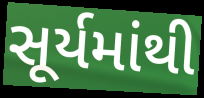
સૂર્યમાંથી